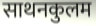
साथनकुलम